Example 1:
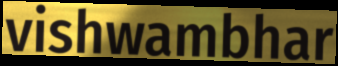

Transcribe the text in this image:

vishwambhar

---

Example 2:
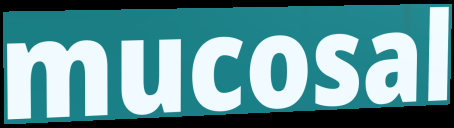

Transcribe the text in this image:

mucosal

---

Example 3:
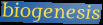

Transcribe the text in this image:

biogenesis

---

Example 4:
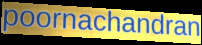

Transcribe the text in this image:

poornachandran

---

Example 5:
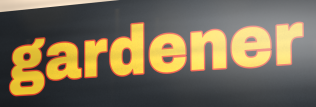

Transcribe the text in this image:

gardener